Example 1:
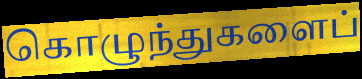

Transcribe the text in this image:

கொழுந்துகளைப்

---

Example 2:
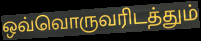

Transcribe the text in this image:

ஒவ்வொருவரிடத்தும்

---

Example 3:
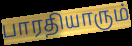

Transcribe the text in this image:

பாரதியாரும்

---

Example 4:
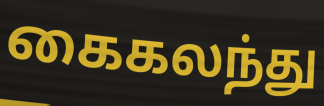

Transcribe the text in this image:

கைகலந்து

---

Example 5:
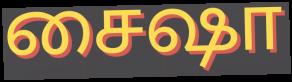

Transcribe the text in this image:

சைஷா